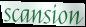
scansion